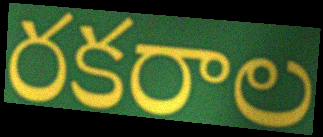
రకరాల